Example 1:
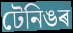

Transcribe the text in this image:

টেনিঙৰ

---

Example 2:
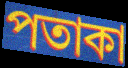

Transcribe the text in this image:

পতাকা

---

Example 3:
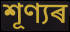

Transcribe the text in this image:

শূণ্যৰ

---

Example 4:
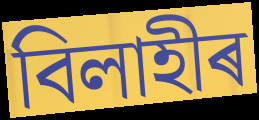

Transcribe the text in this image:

বিলাহীৰ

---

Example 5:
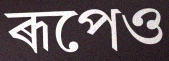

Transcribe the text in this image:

ৰূপেও